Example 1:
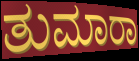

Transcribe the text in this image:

ತುಮಾರಾ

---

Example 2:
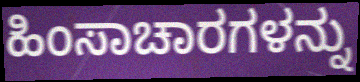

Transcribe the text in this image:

ಹಿಂಸಾಚಾರಗಳನ್ನು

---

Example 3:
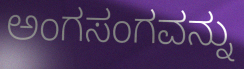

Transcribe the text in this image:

ಅಂಗಸಂಗವನ್ನು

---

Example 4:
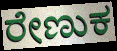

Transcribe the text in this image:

ರೇಣುಕ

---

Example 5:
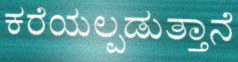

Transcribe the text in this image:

ಕರೆಯಲ್ಪಡುತ್ತಾನೆ